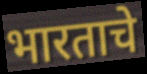
भारताचे